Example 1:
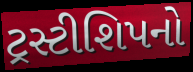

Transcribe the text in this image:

ટ્રસ્ટીશિપનો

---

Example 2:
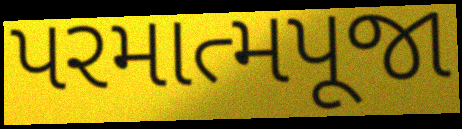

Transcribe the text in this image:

પરમાત્મપૂજા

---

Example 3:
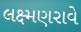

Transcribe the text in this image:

લક્ષ્મણરાવે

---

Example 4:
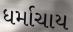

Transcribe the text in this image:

ધર્માચાય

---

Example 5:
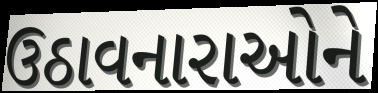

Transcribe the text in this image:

ઉઠાવનારાઓને